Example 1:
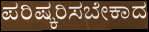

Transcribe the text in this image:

ಪರಿಷ್ಕರಿಸಬೇಕಾದ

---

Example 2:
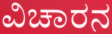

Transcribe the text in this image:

ವಿಚಾರನ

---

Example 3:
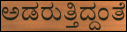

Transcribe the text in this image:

ಅಡರುತ್ತಿದ್ದಂತೆ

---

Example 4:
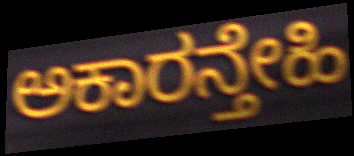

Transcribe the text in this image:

ಅಕಾರನ್ತೇಹಿ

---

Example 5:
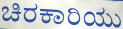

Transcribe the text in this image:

ಚಿರಕಾರಿಯು